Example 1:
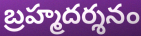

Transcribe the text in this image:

బ్రహ్మదర్శనం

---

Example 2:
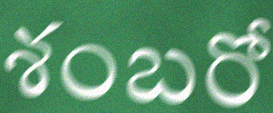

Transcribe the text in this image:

శంబరో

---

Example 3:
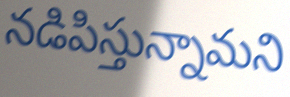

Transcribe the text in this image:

నడిపిస్తున్నామని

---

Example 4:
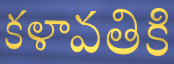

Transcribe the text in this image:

కళావతికి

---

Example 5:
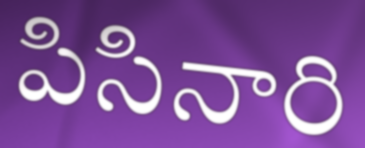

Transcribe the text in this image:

పిసినారి